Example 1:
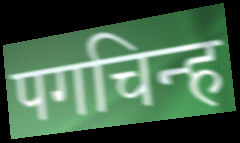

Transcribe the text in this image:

पगचिन्ह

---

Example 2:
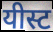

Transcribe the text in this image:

यीस्ट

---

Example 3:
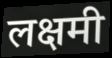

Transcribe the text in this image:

लक्षमी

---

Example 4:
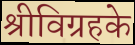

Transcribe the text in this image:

श्रीविग्रहके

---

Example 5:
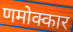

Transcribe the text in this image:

णमोक्कार